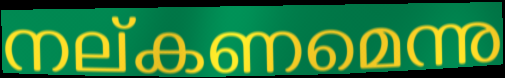
നല്‌കണമെന്നു